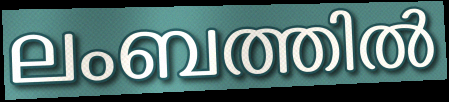
ലംബത്തിൽ